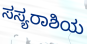
ಸಸ್ಯರಾಶಿಯ